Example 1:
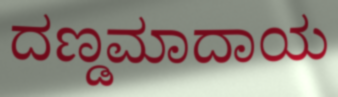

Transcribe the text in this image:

ದಣ್ಡಮಾದಾಯ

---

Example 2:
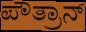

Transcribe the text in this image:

ಪೌತ್ರಾನ್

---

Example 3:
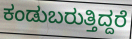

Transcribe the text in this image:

ಕಂಡುಬರುತ್ತಿದ್ದರೆ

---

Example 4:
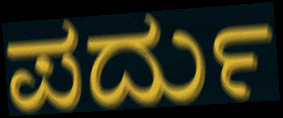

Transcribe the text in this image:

ಪರ್ದು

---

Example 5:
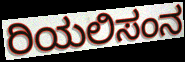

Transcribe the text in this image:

ರಿಯಲಿಸಂನ